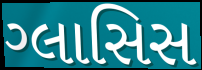
ગ્લાસિસ